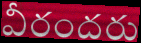
వీరందరు